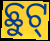
ଛୁଟ୍